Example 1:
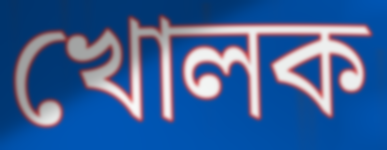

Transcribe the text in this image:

খোলক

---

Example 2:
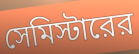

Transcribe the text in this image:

সেমিস্টারের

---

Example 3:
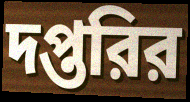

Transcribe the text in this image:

দপ্তরির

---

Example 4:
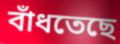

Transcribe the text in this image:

বাঁধতেছে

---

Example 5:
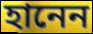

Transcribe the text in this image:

হানেন